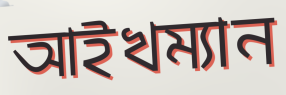
আইখম্যান